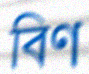
বিণ